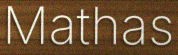
Mathas